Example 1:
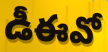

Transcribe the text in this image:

డీఈవో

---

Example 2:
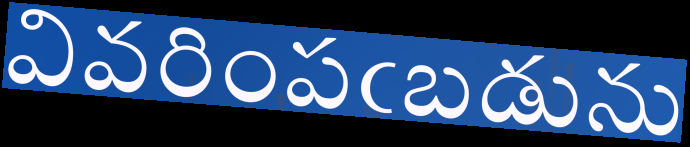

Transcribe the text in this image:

వివరింపఁబడును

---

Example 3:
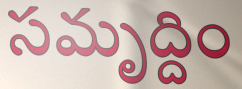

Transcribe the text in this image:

సమృద్దిం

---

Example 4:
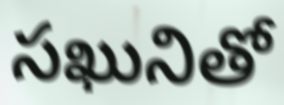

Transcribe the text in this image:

సఖునితో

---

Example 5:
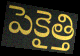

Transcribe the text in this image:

పెకైత్తి